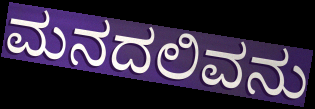
ಮನದಲಿವನು